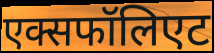
एक्सफॉलिएट